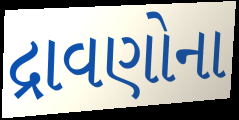
દ્રાવણોના